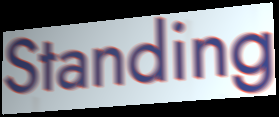
Standing